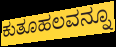
ಕುತೂಹಲವನ್ನೂ